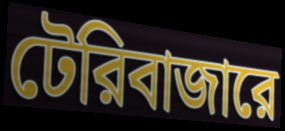
টেরিবাজারে